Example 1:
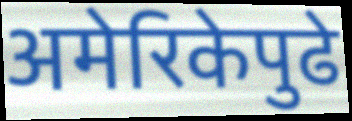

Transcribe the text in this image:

अमेरिकेपुढे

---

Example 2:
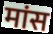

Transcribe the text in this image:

मांस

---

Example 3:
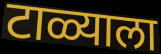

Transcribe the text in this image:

टाळ्याला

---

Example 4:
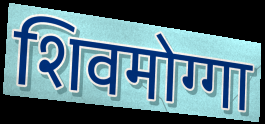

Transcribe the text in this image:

शिवमोग्गा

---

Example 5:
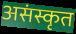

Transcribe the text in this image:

असंस्कृत